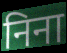
निना